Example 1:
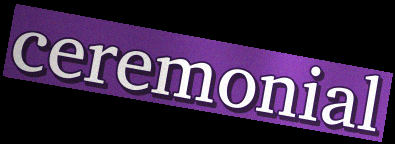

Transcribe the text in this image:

ceremonial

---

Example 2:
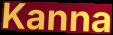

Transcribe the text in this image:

Kanna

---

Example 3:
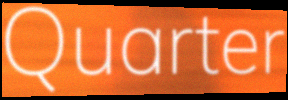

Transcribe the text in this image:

Quarter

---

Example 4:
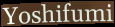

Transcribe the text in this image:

Yoshifumi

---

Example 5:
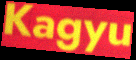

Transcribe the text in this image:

Kagyu